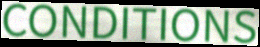
CONDITIONS